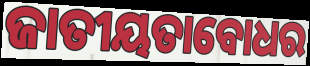
ଜାତୀୟତାବୋଧର